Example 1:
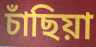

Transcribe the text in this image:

চাঁছিয়া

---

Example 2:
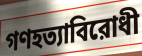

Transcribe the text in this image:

গণহত্যাবিরোধী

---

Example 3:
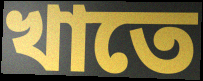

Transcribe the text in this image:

খাতে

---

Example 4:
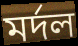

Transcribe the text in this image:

মর্দল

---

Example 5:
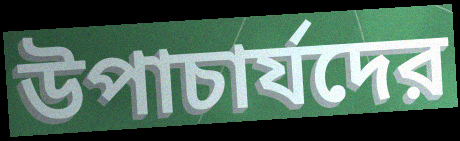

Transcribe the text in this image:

উপাচার্যদের